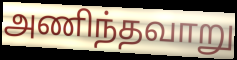
அணிந்தவாறு